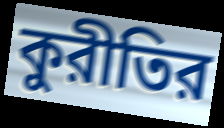
কুরীতির